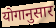
योगानुसार